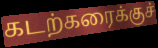
கடற்கரைக்குச்